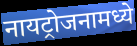
नायट्रोजनामध्ये